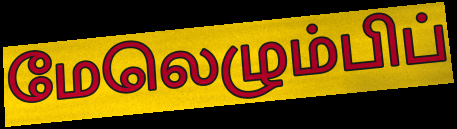
மேலெழும்பிப்